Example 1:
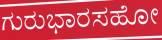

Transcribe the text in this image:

ಗುರುಭಾರಸಹೋ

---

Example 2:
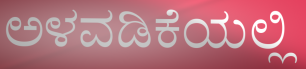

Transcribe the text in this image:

ಅಳವಡಿಕೆಯಲ್ಲಿ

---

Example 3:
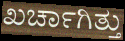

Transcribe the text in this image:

ಖರ್ಚಾಗಿತ್ತು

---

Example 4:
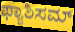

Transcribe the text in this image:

ಫ್ಯಾಶಿಸಮ್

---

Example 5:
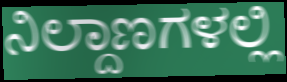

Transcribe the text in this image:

ನಿಲ್ದಾಣಗಳಲ್ಲಿ